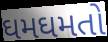
ઘમઘમતો